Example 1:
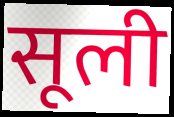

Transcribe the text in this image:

सूली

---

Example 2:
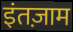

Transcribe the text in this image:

इंतज़ाम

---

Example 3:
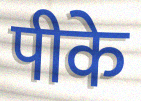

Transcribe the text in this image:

पीके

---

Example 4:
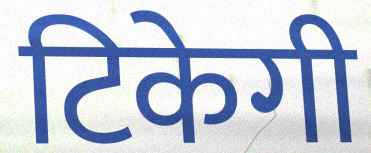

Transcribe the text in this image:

टिकेगी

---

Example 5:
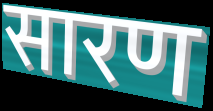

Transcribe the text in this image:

सारण